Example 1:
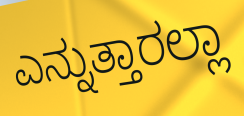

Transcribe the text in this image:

ಎನ್ನುತ್ತಾರಲ್ಲಾ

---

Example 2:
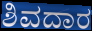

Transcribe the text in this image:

ಶಿವದಾರ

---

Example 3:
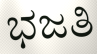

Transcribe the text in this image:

ಭಜತಿ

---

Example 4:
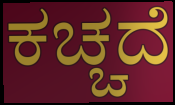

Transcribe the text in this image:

ಕಚ್ಚದೆ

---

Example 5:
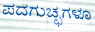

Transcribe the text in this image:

ಪದಗುಚ್ಛಗಳೂ